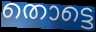
തൊട്ടെ